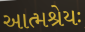
આત્મશ્રેયઃ